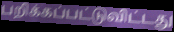
பறிக்கப்பட்டுவிட்டது